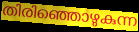
തിരിഞ്ഞൊഴുകുന്ന